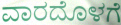
ವಾರದೊಳಗೆ